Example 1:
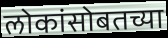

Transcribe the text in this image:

लोकांसोबतच्या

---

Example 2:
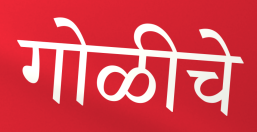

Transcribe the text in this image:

गोळीचे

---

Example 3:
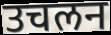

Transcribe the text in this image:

उचलन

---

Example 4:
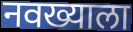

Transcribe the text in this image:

नवख्याला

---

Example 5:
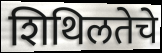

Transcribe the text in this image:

शिथिलतेचे